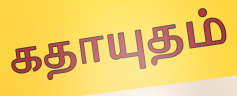
கதாயுதம்